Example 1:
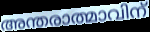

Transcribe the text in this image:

അന്തരാത്മാവിന്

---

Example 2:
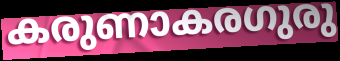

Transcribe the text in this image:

കരുണാകരഗുരു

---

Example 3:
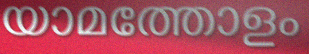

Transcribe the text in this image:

യാമത്തോളം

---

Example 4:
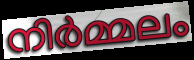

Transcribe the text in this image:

നിർമ്മലം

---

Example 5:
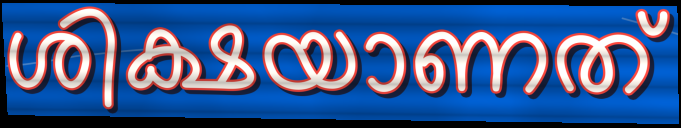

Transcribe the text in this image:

ശിക്ഷയാണത്